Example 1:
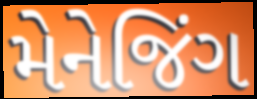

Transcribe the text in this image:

મેનેજિંગ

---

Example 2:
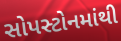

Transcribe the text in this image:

સોપસ્ટોનમાંથી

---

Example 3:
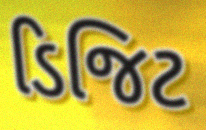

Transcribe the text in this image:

ડિજિટ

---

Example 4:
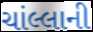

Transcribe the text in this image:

ચાંલ્લાની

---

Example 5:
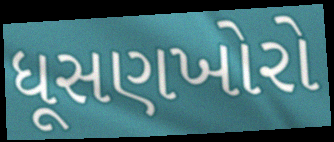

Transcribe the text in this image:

ધૂસણખોરો